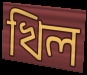
খিল